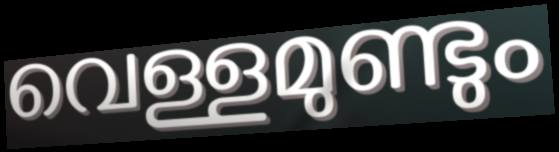
വെള്ളമുണ്ടും